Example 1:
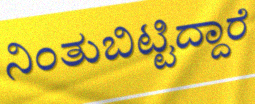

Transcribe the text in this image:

ನಿಂತುಬಿಟ್ಟಿದ್ದಾರೆ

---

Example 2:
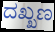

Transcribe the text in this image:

ದಖ್ಖಣ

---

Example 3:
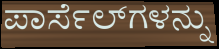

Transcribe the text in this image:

ಪಾರ್ಸೆಲ್‌ಗಳನ್ನು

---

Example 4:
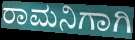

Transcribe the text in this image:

ರಾಮನಿಗಾಗಿ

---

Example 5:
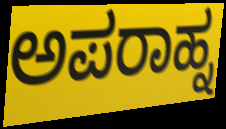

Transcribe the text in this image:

ಅಪರಾಹ್ನ